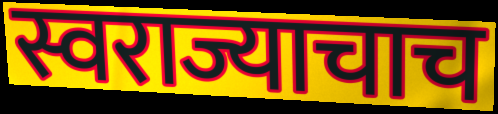
स्वराज्याचाच